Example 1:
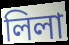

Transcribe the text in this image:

লিলা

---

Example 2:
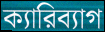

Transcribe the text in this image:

ক্যারিব্যাগ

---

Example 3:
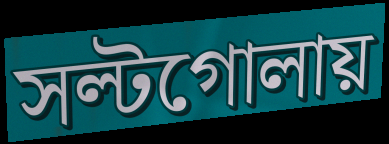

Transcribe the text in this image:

সল্টগোলায়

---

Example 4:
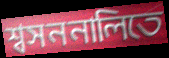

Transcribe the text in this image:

শ্বসননালিতে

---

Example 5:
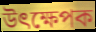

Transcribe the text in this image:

উৎক্ষেপক